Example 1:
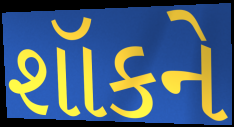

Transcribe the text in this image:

શૉકને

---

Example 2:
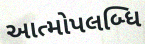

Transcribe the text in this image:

આત્મોપલબ્ધિ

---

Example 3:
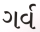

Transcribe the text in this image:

ગર્વ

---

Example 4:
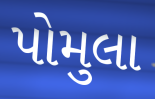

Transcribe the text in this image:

પોમુલા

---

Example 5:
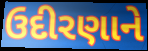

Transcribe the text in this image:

ઉદીરણાને